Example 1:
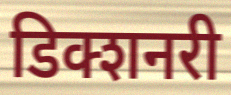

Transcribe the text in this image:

डिक्शनरी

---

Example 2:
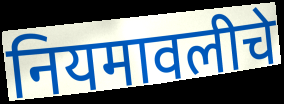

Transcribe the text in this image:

नियमावलीचे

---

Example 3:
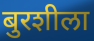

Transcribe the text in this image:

बुरशीला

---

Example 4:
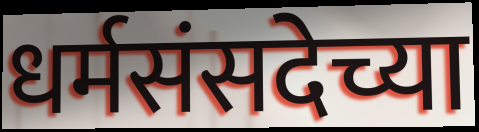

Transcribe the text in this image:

धर्मसंसदेच्या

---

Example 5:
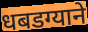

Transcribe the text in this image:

धबडग्याने